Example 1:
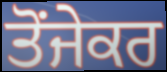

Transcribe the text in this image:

ਤੋਂਜੇਕਰ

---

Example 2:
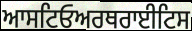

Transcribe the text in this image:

ਆਸਟਿਓਅਰਥਰਾਈਟਿਸ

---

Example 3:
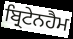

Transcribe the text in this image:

ਬ੍ਰਿਟੇਨਹੈਮ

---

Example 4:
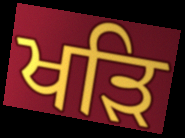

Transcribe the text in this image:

ਖੜਿ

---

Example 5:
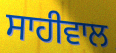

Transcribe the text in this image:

ਸਾਹੀਵਾਲ